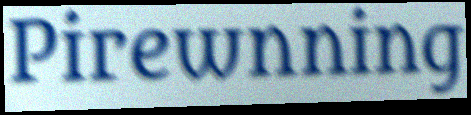
Pirewnning